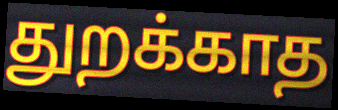
துறக்காத